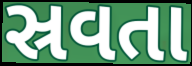
સ્રવતા